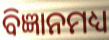
ବିଜ୍ଞାନମଧ୍ୟ